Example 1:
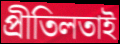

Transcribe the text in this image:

প্ৰীতিলতাই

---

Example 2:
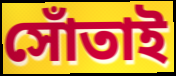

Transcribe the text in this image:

সোঁতাই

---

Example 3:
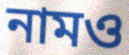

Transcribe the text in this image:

নামও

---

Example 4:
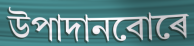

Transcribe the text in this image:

উপাদানবোৰে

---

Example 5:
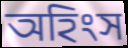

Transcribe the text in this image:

অহিংস